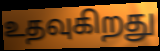
உதவுகிறது